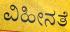
ವಿಹೀನತೆ